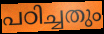
പഠിച്ചതും